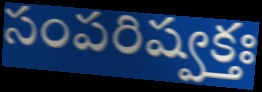
సంపరిష్వక్తః